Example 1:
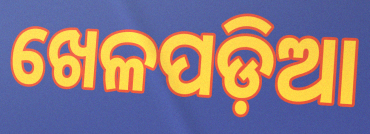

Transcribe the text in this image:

ଖେଳପଡ଼ିଆ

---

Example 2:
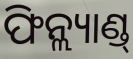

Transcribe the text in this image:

ଫିନ୍ଲ୍ୟାଣ୍ଡ୍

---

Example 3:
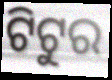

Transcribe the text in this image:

ଟିଟୁର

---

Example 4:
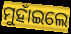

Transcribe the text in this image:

ମୁହାଁଇଲେ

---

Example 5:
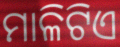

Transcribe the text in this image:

ମାଳିଟିଏ